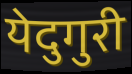
येदुगुरी